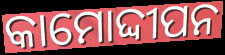
କାମୋଦ୍ଦୀପନ